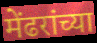
मेंढरांच्या